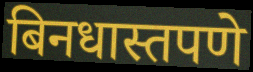
बिनधास्तपणे